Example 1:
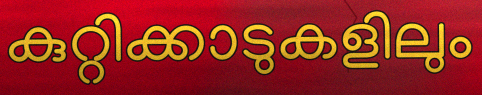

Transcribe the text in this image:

കുറ്റിക്കാടുകളിലും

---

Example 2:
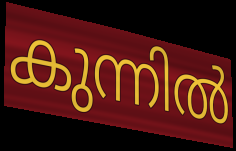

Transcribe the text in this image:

കുന്നിൽ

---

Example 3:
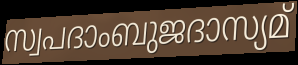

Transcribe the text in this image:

സ്വപദാംബുജദാസ്യമ്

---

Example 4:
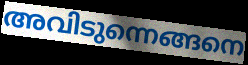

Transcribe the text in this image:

അവിടുന്നെങ്ങനെ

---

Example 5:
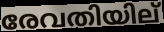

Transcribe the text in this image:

രേവതിയില്